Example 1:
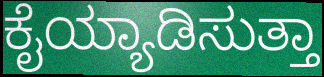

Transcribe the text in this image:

ಕೈಯ್ಯಾಡಿಸುತ್ತಾ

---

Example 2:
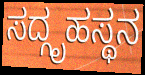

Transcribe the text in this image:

ಸದ್ಗೃಹಸ್ಥನ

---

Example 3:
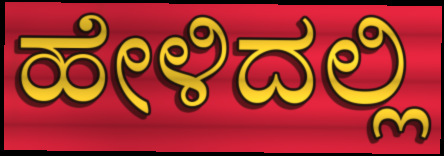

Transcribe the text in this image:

ಹೇಳಿದಲ್ಲಿ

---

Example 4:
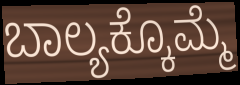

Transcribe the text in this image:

ಬಾಲ್ಯಕ್ಕೊಮ್ಮೆ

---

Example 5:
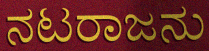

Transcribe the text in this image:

ನಟರಾಜನು